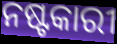
ନଷ୍ଟକାରୀ